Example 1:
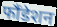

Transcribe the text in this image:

फौंडेशन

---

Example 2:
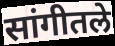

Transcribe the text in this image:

सांगीतले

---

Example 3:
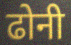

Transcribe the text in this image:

ढोनी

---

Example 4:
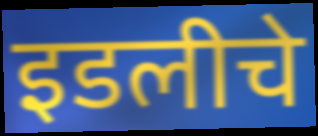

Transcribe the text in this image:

इडलीचे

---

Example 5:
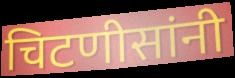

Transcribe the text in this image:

चिटणीसांनी